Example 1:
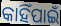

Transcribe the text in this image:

କାହିଁପାଇଁ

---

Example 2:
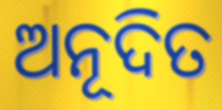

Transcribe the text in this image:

ଅନୂଦିତ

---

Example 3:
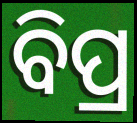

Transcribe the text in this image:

ବିପ୍ର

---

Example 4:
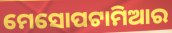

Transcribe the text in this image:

ମେସୋପଟାମିଆର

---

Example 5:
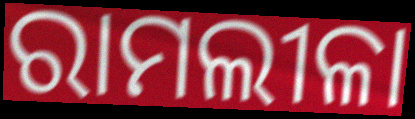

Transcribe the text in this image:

ରାମଲୀଳା